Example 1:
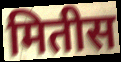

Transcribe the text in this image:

मितीस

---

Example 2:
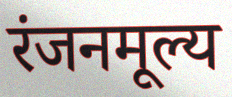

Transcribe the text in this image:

रंजनमूल्य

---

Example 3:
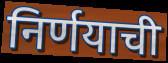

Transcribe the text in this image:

निर्णयाची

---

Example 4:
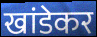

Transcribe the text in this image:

खांडेकर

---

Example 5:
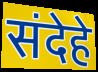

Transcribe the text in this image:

संदेहे